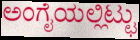
ಅಂಗೈಯಲ್ಲಿಟ್ಟು